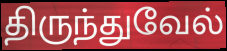
திருந்துவேல்